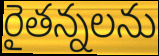
రైతన్నలను